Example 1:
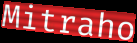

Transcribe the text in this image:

Mitraho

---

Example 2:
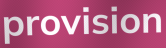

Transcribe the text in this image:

provision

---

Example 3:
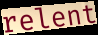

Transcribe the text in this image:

relent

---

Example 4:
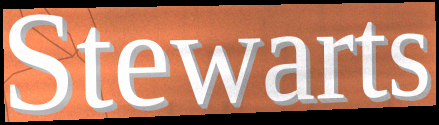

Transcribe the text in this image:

Stewarts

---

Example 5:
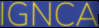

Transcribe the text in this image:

IGNCA